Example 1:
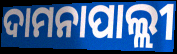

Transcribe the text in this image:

ଦାମନାପାଲ୍ଲୀ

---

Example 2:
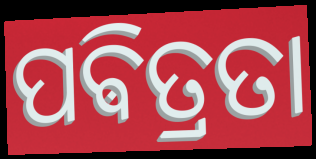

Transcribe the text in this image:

ପଵିତ୍ରତା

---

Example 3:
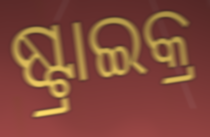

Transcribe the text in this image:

ଷ୍ଟ୍ରାଇକ୍ର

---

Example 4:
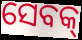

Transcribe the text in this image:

ସେବକ୍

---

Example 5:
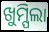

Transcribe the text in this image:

ଖୁମ୍ପିଲା